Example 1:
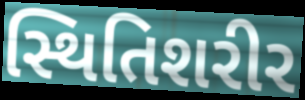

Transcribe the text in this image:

સ્થિતિશરીર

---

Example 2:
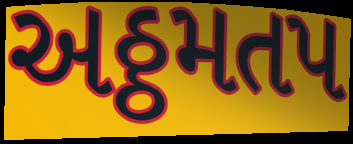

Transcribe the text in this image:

અઠ્ઠમતપ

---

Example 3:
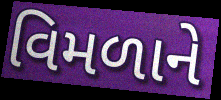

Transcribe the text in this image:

વિમળાને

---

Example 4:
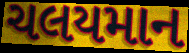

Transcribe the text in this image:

ચલયમાન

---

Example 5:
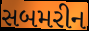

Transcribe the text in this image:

સબમરીન